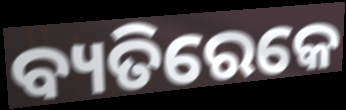
ବ୍ୟତିରେକେ